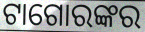
ଟାଗୋରଙ୍କର